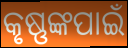
କୃଷ୍ଣଙ୍କପାଇଁ